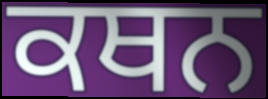
ਕਥਨ